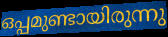
ഒപ്പമുണ്ടായിരുന്നു